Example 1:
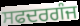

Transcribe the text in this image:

ਸਫਦਰਗੰਜ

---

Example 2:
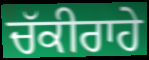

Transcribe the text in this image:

ਚੱਕੀਰਾਹੇ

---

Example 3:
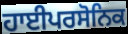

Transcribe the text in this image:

ਹਾਈਪਰਸੋਨਿਕ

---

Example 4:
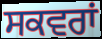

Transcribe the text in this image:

ਸਕਵਰਾਂ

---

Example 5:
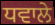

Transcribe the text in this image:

ਧਵਾਲੇ